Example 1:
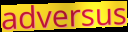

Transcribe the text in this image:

adversus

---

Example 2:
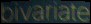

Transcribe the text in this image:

bivariate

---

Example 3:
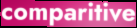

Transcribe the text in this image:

comparitive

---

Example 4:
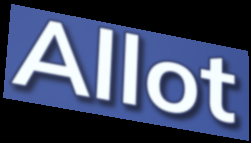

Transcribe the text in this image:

Allot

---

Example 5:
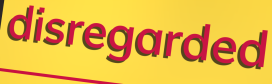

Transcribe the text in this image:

disregarded